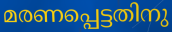
മരണപ്പെട്ടതിനു